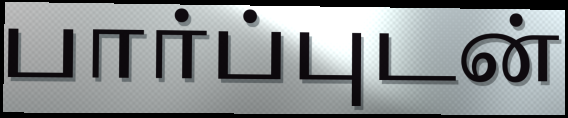
பார்ப்புடன்